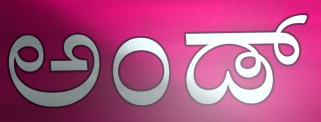
ಅಂಡ್